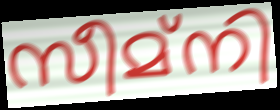
സീമ്നി